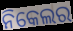
ନିକେଲର